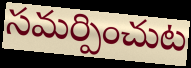
సమర్పించుట